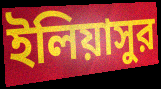
ইলিয়াসুর